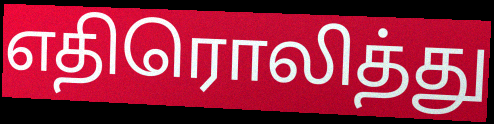
எதிரொலித்து